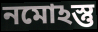
নমোঽস্তু